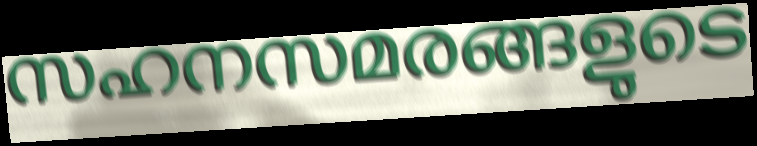
സഹനസമരങ്ങളുടെ